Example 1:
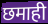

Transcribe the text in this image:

छमाही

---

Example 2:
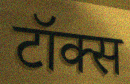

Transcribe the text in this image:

टॉक्स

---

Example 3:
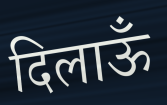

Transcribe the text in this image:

दिलाऊँ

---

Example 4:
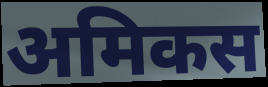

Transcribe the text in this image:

अमिकस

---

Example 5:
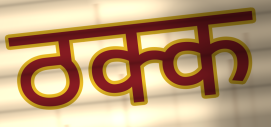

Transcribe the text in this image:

ठक्क